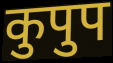
कुपुप